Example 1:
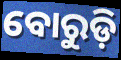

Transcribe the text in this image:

ବୋରୁଡ଼ି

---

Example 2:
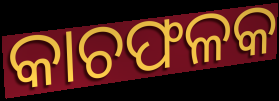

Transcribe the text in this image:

କାଚଫଳକ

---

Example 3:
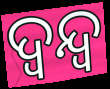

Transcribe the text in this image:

ଦ୍ବନ୍ଦ୍ବ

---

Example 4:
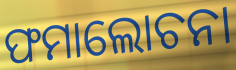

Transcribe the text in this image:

ଫମାଲୋଚନା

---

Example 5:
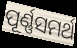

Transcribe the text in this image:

ପୂର୍ଣ୍ଣସମର୍ଥ